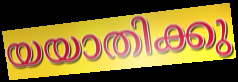
യയാതിക്കു